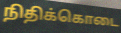
நிதிக்கொடை